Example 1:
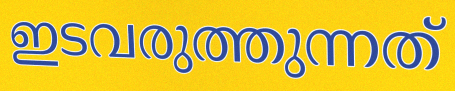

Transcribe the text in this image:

ഇടവരുത്തുന്നത്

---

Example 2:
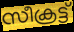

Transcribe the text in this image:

സീക്രട്ട്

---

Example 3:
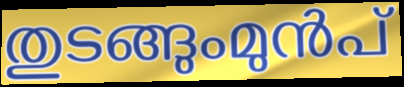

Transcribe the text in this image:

തുടങ്ങുംമുൻപ്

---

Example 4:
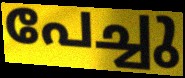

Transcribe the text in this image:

പേച്ചു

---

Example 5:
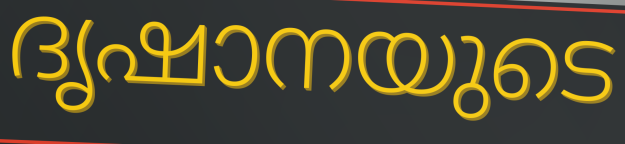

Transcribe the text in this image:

ദൃഷാനയുടെ